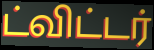
ட்விட்டர்